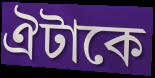
ঐটাকে